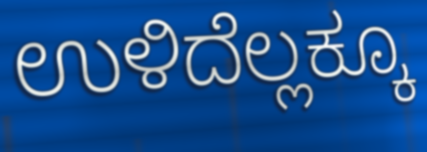
ಉಳಿದೆಲ್ಲಕ್ಕೂ